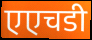
एएचडी